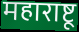
महाराष्टू